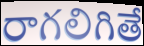
రాగలిగితే